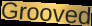
Grooved